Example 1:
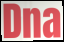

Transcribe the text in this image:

Dna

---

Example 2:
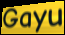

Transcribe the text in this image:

Gayu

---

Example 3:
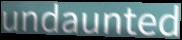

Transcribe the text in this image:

undaunted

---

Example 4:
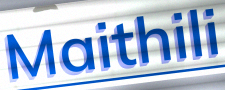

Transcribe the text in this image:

Maithili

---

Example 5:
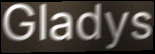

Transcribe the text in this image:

Gladys